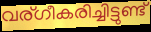
വര്ഗീകരിച്ചിട്ടുണ്ട്